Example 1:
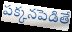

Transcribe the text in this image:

పక్కనపెడితే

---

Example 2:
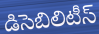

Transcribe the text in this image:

డిసెబిలిటీస్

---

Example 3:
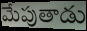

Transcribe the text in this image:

మేపుతాడు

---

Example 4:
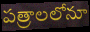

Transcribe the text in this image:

పత్రాలలోనూ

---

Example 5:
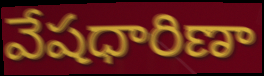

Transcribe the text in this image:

వేషధారిణా